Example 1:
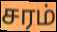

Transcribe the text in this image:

சரம்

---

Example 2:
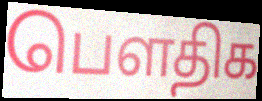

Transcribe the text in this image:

பெளதிக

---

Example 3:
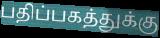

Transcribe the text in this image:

பதிப்பகத்துக்கு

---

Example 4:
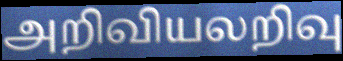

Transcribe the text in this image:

அறிவியலறிவு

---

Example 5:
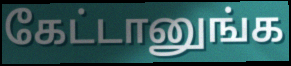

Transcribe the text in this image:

கேட்டானுங்க